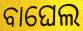
ବାଘେଲ